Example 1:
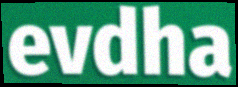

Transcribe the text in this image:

evdha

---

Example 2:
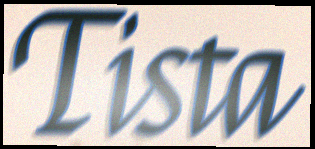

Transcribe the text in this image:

Tista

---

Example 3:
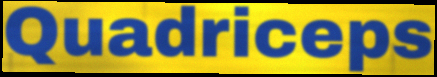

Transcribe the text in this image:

Quadriceps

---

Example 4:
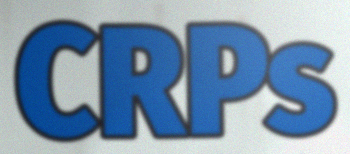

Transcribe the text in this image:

CRPs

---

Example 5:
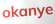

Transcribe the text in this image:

okanye